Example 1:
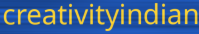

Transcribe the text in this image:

creativityindian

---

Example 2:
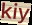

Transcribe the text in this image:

kiy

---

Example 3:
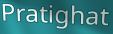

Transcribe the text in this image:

Pratighat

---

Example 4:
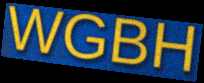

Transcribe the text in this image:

WGBH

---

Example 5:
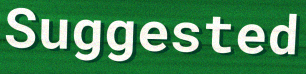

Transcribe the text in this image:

Suggested